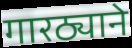
गारठ्याने